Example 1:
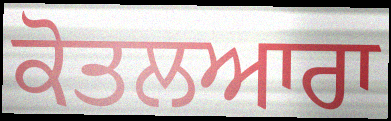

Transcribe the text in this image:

ਕੋਤਲਆਰਾ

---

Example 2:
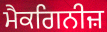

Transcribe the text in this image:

ਮੈਕਗਿਨੀਜ਼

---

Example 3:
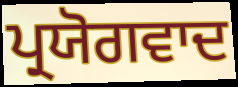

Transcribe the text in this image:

ਪ੍ਰਯੋਗਵਾਦ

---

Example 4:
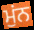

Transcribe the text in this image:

ਮੁਂਨ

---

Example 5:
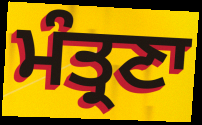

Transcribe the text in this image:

ਮੰਤ੍ਰਣਾ